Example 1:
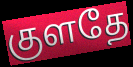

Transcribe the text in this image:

குளதே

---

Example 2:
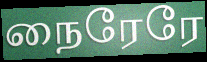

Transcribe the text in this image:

நைரேரே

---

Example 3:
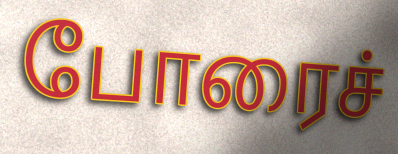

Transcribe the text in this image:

போரைச்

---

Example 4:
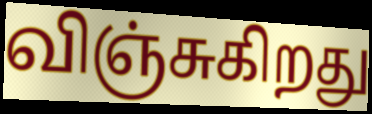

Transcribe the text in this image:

விஞ்சுகிறது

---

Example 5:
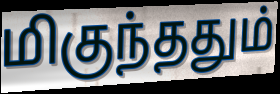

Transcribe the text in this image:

மிகுந்ததும்